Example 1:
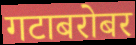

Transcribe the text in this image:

गटाबरोबर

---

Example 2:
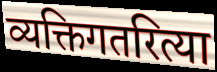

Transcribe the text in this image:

व्यक्तिगतरित्या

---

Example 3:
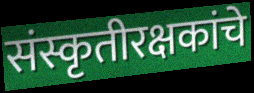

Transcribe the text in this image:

संस्कृतीरक्षकांचे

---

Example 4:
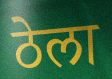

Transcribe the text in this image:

ठेला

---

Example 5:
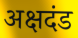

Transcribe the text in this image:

अक्षदंड